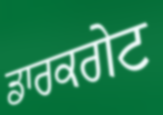
ਡਾਰਕਗੇਟ